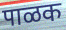
पाळक